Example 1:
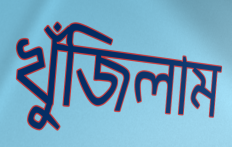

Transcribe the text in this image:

খুঁজিলাম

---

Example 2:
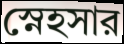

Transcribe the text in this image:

স্নেহসার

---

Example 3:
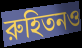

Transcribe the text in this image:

রুহিতনও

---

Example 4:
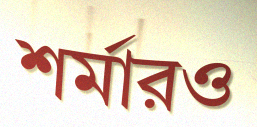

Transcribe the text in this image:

শর্মারও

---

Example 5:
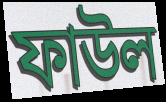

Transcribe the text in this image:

ফাউল